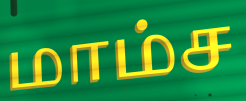
மாம்ச